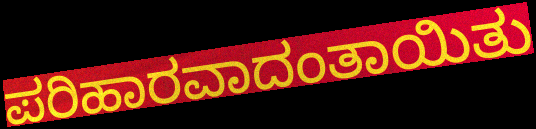
ಪರಿಹಾರವಾದಂತಾಯಿತು